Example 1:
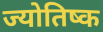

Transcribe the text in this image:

ज्योतिष्क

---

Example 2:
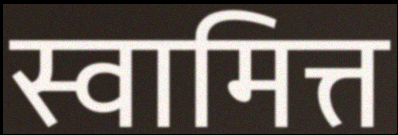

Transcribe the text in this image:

स्वामित्त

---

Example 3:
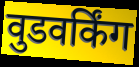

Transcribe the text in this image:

वुडवर्किंग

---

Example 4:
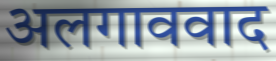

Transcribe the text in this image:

अलगाववाद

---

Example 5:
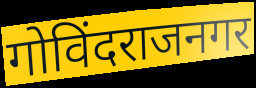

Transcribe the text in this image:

गोविंदराजनगर